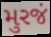
મુરજં